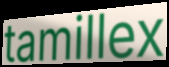
tamillex